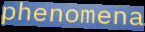
phenomena